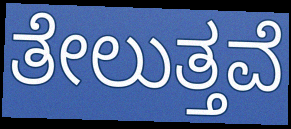
ತೇಲುತ್ತವೆ